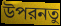
উপরনতু